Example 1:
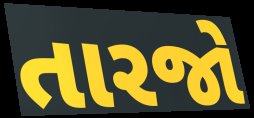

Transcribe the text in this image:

તારજો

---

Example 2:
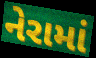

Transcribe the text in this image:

નેરામાં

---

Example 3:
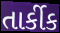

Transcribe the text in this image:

તાર્કીક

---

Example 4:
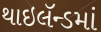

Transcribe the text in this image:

થાઇલૅન્ડમાં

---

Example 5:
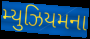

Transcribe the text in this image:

મ્યુઝિયમના